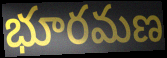
భూరమణ